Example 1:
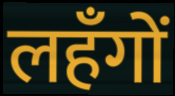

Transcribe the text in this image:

लहँगों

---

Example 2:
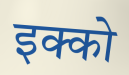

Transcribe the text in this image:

इक्को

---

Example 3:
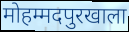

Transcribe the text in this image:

मोहम्मदपुरखाला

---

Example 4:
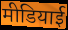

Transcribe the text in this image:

मीडियाई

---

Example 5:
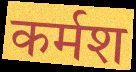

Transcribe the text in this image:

कर्मश